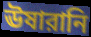
ঊষারানি